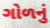
ગોળનું